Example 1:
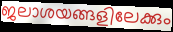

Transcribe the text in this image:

ജലാശയങ്ങളിലേക്കും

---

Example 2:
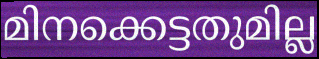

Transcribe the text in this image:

മിനക്കെട്ടതുമില്ല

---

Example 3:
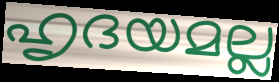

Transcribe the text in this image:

ഹൃദയമല്ല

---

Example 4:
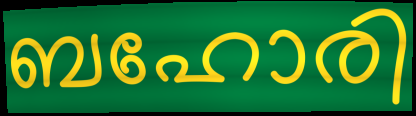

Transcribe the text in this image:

ബഹോരി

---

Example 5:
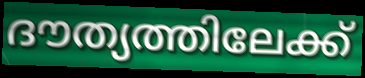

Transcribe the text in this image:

ദൗത്യത്തിലേക്ക്